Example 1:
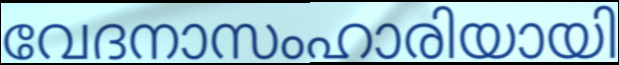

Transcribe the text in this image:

വേദനാസംഹാരിയായി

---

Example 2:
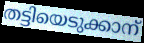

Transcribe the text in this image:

തട്ടിയെടുക്കാന്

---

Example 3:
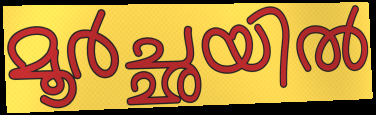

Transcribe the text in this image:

മൂർച്ഛയിൽ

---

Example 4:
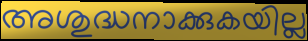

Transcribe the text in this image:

അശുദ്ധനാക്കുകയില്ല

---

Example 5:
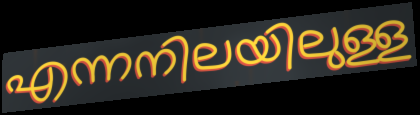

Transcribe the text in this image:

എന്നനിലയിലുള്ള